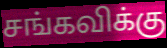
சங்கவிக்கு